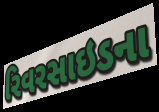
રિવરસાઇડના